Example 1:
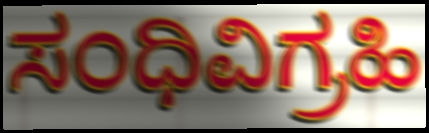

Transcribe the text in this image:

ಸಂಧಿವಿಗ್ರಹಿ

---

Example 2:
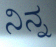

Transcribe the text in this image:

ನಿನ್ನ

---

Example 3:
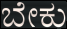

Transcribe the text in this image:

ಬೇಕು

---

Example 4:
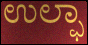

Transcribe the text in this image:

ಉಲ್ಫಾ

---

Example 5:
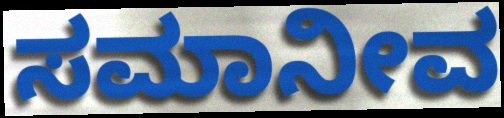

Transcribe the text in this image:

ಸಮಾನೀವ